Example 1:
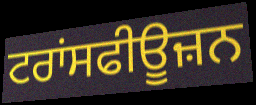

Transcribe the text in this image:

ਟਰਾਂਸਫੀਊਜ਼ਨ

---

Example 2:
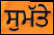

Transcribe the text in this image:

ਸੁਮੱਤੇ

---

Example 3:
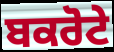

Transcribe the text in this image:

ਬਕਰੋਟੇ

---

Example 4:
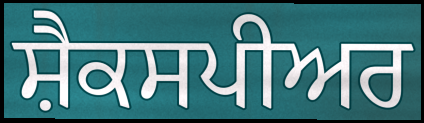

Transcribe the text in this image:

ਸ਼ੈਕਸਪੀਅਰ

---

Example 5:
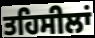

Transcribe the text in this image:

ਤਹਿਸੀਲਾਂ